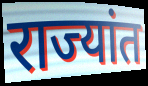
राज्यांत